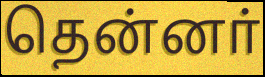
தென்னர்